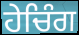
ਹੇਚਿੰਗ